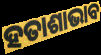
ହତାଶାଭାବ